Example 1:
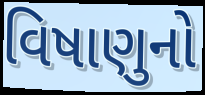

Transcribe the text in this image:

વિષાણુનો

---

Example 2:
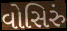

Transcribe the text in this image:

વોસિરું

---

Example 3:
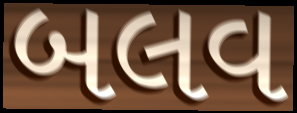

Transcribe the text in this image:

બલવ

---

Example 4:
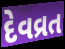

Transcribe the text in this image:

દેવવ્રત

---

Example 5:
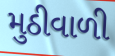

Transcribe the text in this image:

મુઠીવાળી